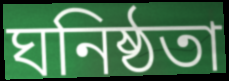
ঘনিষ্ঠতা